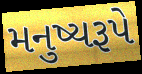
મનુષ્યરૂપે